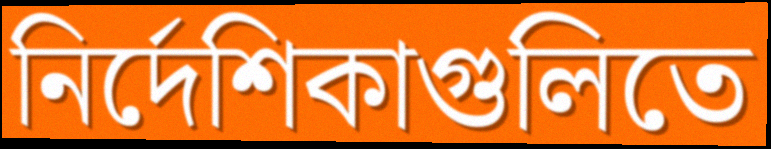
নির্দেশিকাগুলিতে